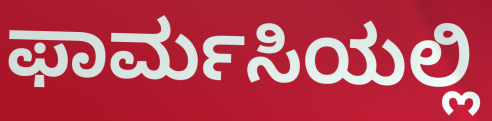
ಫಾರ್ಮಸಿಯಲ್ಲಿ